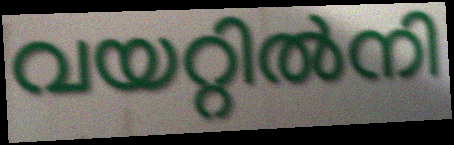
വയറ്റിൽനി